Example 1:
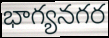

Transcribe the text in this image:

భాగ్యనగర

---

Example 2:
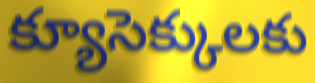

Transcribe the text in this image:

క్యూసెక్కులకు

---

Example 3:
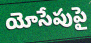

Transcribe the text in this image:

యోసేపుపై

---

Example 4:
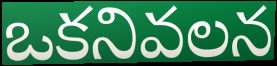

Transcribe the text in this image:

ఒకనివలన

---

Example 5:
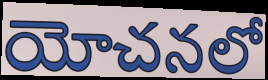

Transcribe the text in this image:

యోచనలో